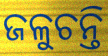
ଜଳୁଚନ୍ତି